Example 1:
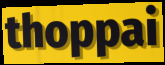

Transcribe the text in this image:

thoppai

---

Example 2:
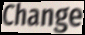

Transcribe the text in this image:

Change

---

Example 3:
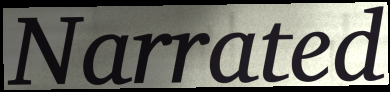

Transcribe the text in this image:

Narrated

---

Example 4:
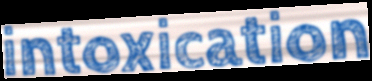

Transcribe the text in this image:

intoxication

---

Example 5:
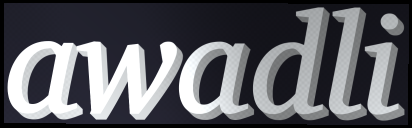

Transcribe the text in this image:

awadli